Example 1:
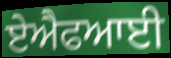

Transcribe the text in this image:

ਏਐਫਆਈ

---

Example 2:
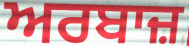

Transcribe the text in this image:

ਅਰਬਾਜ਼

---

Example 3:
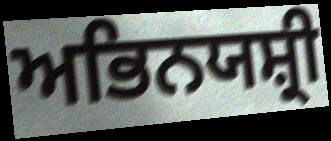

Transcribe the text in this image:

ਅਭਿਨਯਸ਼੍ਰੀ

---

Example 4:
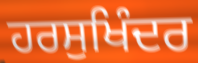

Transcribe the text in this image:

ਹਰਸੁਖਿੰਦਰ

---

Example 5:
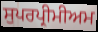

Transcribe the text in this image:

ਸੁਪਰਪ੍ਰੀਮੀਅਮ